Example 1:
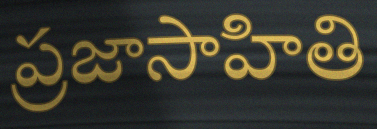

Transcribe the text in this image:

ప్రజాసాహితి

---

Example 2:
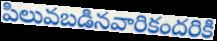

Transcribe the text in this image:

పిలువబడినవారికందరికి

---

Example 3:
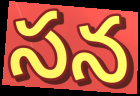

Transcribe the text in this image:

సన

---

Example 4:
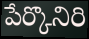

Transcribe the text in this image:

పేర్కొనిరి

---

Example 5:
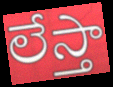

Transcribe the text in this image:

లేస్తా